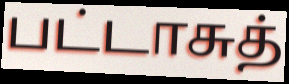
பட்டாசுத்